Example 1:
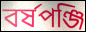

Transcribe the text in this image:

বর্ষপঞ্জি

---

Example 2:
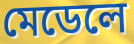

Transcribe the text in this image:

মেডেলে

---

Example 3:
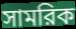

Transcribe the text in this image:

সামরিক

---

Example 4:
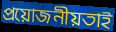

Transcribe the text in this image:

প্রয়োজনীয়তাই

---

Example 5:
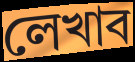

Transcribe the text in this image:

লেখাব